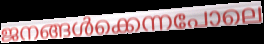
ജനങ്ങൾക്കെന്നപോലെ